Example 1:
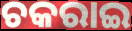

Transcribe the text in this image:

ଚକରାଇ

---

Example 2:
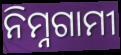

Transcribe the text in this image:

ନିମ୍ନଗାମୀ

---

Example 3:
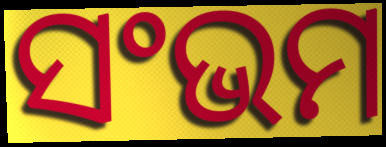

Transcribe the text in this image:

ସଂଭମ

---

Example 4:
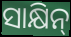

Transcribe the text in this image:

ସାକ୍ଷିନ୍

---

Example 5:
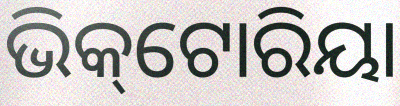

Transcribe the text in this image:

ଭିକ୍‌ଟୋରିୟା